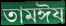
তামঈয